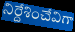
నిర్దేశించేవిగా